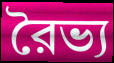
রৈভ্য